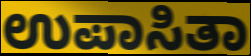
ಉಪಾಸಿತಾ